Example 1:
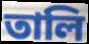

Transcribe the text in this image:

তালি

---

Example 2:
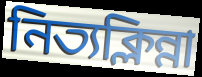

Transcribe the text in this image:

নিত্যক্লিন্না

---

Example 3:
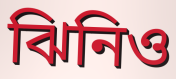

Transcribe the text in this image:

ঝিনিও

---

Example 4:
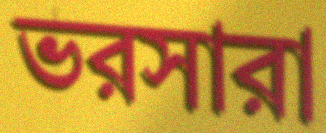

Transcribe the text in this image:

ভরসারা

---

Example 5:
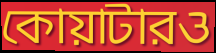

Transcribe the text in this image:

কোয়াটারও